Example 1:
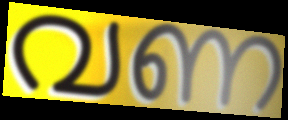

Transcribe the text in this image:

വണ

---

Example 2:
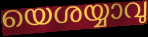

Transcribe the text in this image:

യെശയ്യാവു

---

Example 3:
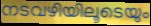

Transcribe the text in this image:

നടവഴിയിലൂടെയും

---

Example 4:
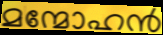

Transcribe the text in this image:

മന്മോഹൻ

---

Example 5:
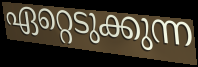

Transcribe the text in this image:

ഏറ്റെടുക്കുന്ന